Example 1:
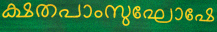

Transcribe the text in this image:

ക്ഷതപാംസുഘോഷേ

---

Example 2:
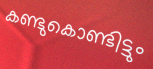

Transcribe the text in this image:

കണ്ടുകൊണ്ടിട്ടും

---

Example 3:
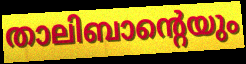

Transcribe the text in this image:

താലിബാന്റെയും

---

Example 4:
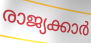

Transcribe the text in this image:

രാജ്യക്കാർ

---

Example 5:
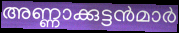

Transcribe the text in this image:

അണ്ണാക്കുട്ടൻമാർ